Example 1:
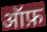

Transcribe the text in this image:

ऑफ़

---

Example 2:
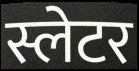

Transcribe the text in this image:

स्लेटर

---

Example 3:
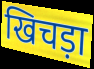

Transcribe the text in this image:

खिचड़ा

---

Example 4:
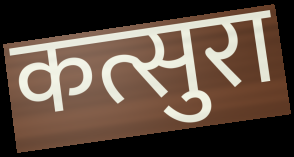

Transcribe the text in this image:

कत्सुरा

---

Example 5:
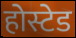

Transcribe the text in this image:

होस्टेड